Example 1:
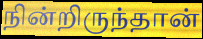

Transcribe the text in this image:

நின்றிருந்தான்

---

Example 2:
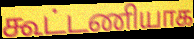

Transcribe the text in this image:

கூட்டணியாக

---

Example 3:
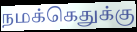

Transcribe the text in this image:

நமக்கெதுக்கு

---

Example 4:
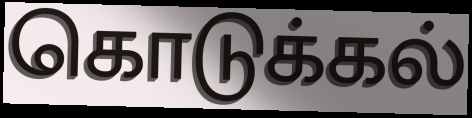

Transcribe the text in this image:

கொடுக்கல்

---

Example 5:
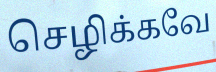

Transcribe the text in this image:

செழிக்கவே